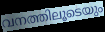
വനത്തിലൂടെയും